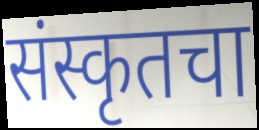
संस्कृतचा